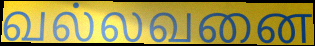
வல்லவனை